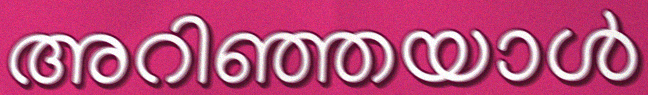
അറിഞ്ഞയാൾ